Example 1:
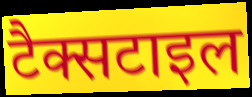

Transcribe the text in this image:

टैक्सटाइल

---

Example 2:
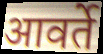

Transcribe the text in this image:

आवर्ते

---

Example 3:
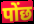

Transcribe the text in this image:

पोंछ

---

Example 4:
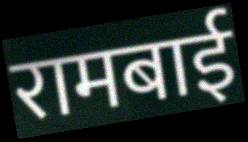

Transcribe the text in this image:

रामबाई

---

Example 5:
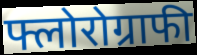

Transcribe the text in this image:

फ्लोरोग्राफी